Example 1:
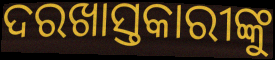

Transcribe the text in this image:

ଦରଖାସ୍ତକାରୀଙ୍କୁ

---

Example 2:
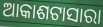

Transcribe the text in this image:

ଆକାଶଟାସାରା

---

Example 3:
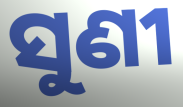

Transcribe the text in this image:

ସୁଣୀ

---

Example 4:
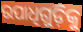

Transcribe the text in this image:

ଉପାଧିଗୁଡ଼ିକୁ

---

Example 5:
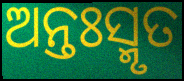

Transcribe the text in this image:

ଅନ୍ତଃସ୍ମୃତ